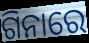
ଗିନାରେ